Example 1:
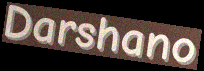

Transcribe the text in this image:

Darshano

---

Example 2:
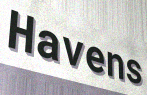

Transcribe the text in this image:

Havens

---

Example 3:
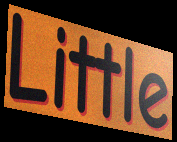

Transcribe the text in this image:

Little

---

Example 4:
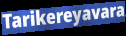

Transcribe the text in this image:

Tarikereyavara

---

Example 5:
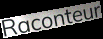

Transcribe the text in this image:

Raconteur